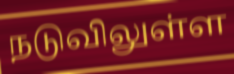
நடுவிலுள்ள